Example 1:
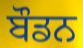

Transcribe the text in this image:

ਬੌਡਨ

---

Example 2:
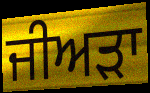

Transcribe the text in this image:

ਜੀਅੜਾ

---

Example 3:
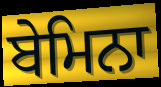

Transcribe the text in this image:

ਬੇਮਿਨਾ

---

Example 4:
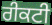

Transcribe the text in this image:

ਰੀਕਟੀ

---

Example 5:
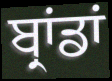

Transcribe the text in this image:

ਬ੍ਰਾਂਡਾਂ